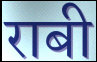
राबी